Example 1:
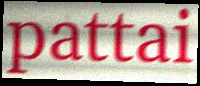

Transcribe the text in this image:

pattai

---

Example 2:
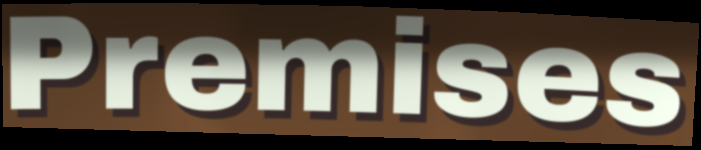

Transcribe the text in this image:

Premises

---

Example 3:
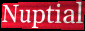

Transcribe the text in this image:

Nuptial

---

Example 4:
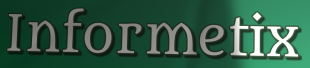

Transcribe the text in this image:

Informetix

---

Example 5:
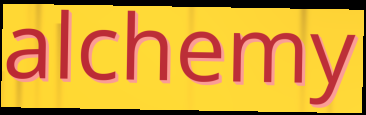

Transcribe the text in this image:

alchemy